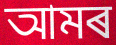
আমৰ